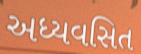
અધ્યવસિત